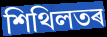
শিথিলতৰ